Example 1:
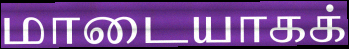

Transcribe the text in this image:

மாடையாகக்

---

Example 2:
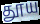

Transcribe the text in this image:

தூய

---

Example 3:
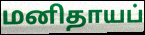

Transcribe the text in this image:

மனிதாயப்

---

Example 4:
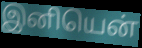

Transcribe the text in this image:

இனியென்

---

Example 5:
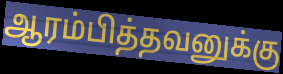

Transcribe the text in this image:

ஆரம்பித்தவனுக்கு